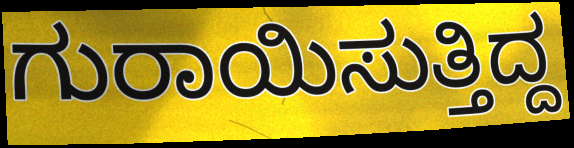
ಗುರಾಯಿಸುತ್ತಿದ್ದ